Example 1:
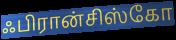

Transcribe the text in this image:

ஃபிரான்சிஸ்கோ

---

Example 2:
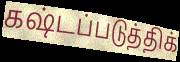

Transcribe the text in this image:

கஷ்டப்படுத்திக்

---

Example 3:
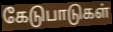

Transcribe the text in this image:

கேடுபாடுகள்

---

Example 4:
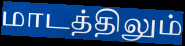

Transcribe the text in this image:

மாடத்திலும்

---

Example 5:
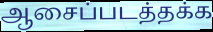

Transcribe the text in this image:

ஆசைப்படத்தக்க